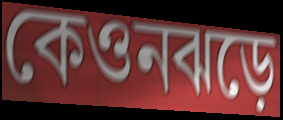
কেওনঝড়ে